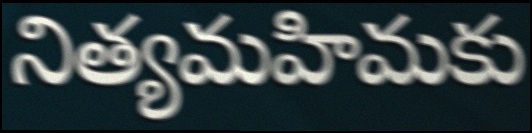
నిత్యమహిమకు